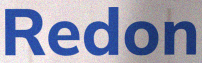
Redon